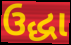
ઉદ્ધા